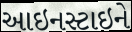
આઇનસ્ટાઇને